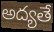
అద్యతే